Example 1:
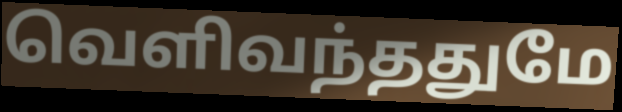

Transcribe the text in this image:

வெளிவந்ததுமே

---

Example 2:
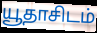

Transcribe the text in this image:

யூதாசிடம்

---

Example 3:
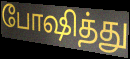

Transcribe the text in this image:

போஷித்து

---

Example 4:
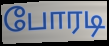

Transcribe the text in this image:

போரடி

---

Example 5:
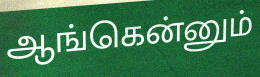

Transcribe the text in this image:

ஆங்கென்னும்